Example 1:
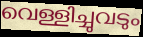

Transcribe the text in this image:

വെള്ളിച്ചുവടും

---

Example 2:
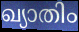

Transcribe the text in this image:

ഖ്യാതിം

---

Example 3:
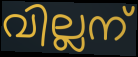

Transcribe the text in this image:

വില്ലന്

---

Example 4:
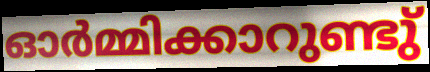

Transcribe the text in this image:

ഓർമ്മിക്കാറുണ്ടു്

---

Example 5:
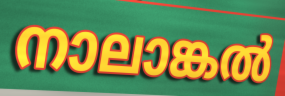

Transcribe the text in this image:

നാലാങ്കൽ